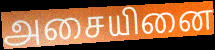
அசையினை